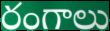
రంగాలు